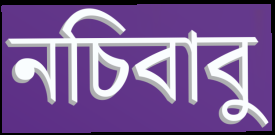
নচিবাবু